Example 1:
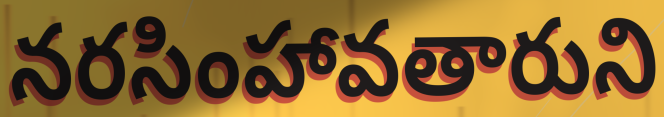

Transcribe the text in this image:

నరసింహావతారుని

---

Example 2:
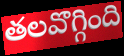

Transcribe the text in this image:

తలవొగ్గింది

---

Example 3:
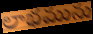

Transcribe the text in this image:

లాభమును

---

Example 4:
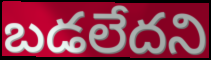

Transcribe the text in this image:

బడలేదని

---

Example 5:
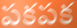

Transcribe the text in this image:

పకపక